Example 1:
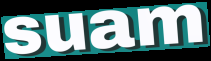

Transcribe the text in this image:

suam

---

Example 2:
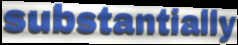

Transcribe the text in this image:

substantially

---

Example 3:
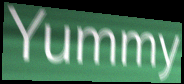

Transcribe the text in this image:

Yummy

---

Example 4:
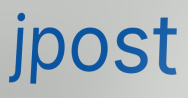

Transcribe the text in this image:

jpost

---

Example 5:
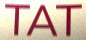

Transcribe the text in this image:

TAT